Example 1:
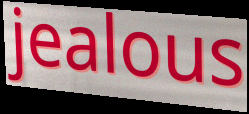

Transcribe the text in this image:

jealous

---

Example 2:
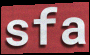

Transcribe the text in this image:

sfa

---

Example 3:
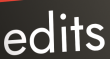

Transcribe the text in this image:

edits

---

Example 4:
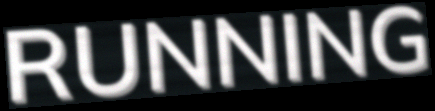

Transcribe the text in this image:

RUNNING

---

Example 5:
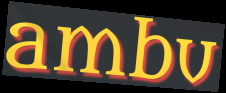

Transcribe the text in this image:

ambu